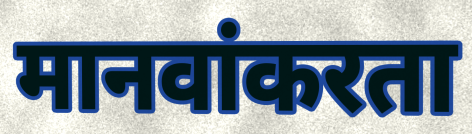
मानवांकरता